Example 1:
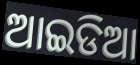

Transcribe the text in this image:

ଆଇଡିଆ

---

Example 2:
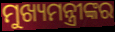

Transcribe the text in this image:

ମୁଖ୍ୟମନ୍ତ୍ରୀଙ୍କର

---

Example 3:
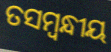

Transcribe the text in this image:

ତସମ୍ବନ୍ଧୀୟ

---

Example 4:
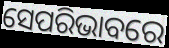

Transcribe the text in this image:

ସେପରିଭାବରେ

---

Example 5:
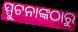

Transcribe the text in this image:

ସ୍ପୁଟନାଙ୍କଠାରୁ